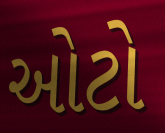
ઓટો